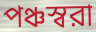
পঞ্চস্বরা